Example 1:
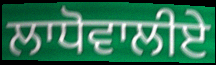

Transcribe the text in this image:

ਲਾਧੋਵਾਲੀਏ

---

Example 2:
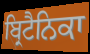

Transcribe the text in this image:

ਬ੍ਰਿਟੈਨਿਕਾ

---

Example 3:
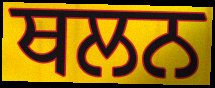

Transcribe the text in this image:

ਥਲਨ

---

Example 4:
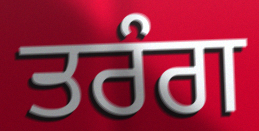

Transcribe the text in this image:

ਤਰੰਗ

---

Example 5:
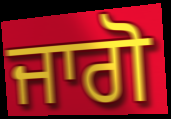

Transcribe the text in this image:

ਜਾਗੋ